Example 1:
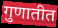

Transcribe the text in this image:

गुणातीत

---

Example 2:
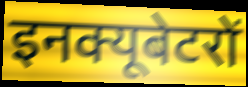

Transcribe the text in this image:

इनक्यूबेटरों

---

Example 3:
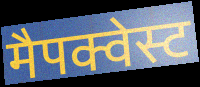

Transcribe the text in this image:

मैपक्वेस्ट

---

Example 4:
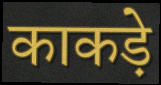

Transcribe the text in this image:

काकड़े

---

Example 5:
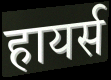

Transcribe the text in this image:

हायर्स